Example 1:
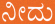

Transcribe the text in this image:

ನೀದು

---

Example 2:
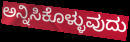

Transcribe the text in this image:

ಅನ್ನಿಸಿಕೊಳ್ಳುವುದು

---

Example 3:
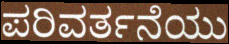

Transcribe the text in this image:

ಪರಿವರ್ತನೆಯು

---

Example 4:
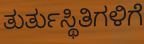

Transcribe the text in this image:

ತುರ್ತುಸ್ಥಿತಿಗಳಿಗೆ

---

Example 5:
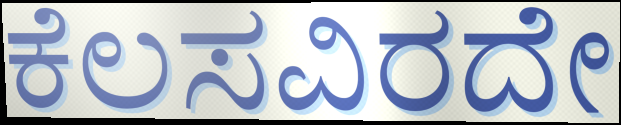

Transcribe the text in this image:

ಕೆಲಸವಿರದೇ